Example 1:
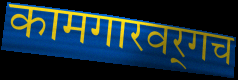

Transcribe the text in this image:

कामगारवर्गच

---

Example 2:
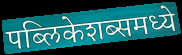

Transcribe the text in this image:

पब्लिकेशब्समध्ये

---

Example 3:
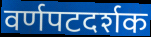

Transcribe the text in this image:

वर्णपटदर्शक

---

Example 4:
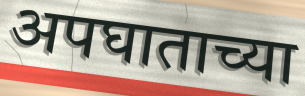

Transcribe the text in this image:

अपघाताच्या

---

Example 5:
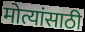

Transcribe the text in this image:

मोत्यांसाठी